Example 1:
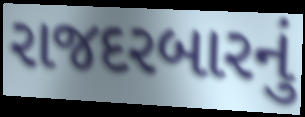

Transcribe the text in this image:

રાજદરબારનું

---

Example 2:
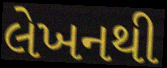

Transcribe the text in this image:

લેખનથી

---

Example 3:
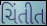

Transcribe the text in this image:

ચિંતીત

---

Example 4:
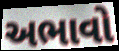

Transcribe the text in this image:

અભાવો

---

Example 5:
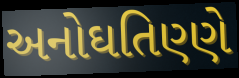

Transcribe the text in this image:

અનોઘતિણ્ણે